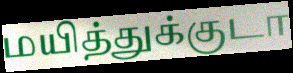
மயித்துக்குடா